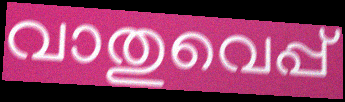
വാതുവെപ്പ്